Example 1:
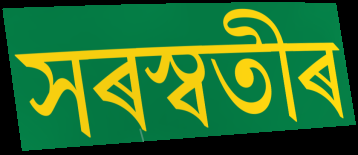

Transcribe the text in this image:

সৰস্বতীৰ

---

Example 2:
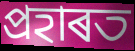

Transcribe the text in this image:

প্ৰহাৰত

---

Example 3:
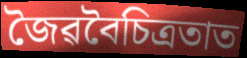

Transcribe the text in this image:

জৈৱবৈচিত্ৰতাত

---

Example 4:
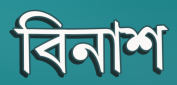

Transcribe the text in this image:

বিনাশ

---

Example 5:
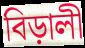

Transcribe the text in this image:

বিড়ালী